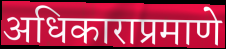
अधिकाराप्रमाणे